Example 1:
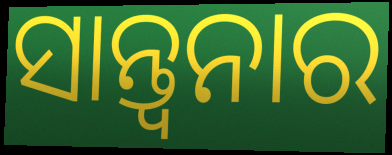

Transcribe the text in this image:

ସାନ୍ତ୍ବନାର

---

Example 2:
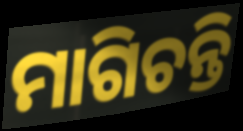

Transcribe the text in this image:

ମାଗିଚନ୍ତି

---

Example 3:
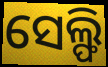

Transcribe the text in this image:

ସେଲ୍ଫି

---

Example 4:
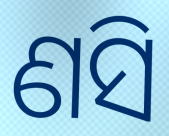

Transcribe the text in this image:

ଣସି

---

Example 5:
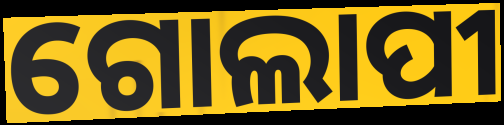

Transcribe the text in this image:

ଗୋଲାପୀ